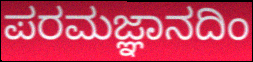
ಪರಮಜ್ಞಾನದಿಂ